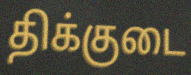
திக்குடை